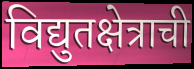
विद्युतक्षेत्राची